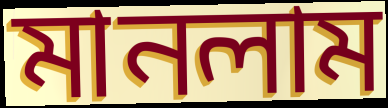
মানলাম